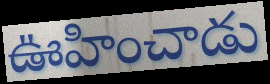
ఊహించాడు